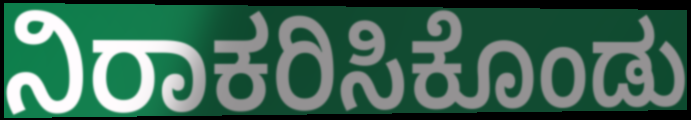
ನಿರಾಕರಿಸಿಕೊಂಡು